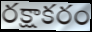
రక్షాకరం